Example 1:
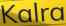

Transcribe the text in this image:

Kalra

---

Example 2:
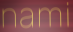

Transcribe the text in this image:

nami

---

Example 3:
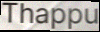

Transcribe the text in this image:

Thappu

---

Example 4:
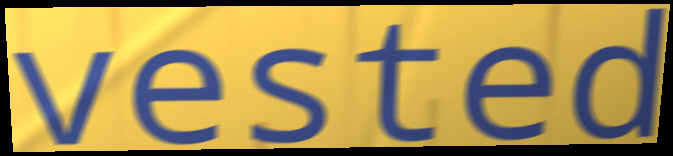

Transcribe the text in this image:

vested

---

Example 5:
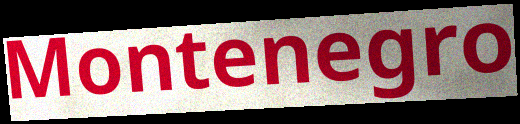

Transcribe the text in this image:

Montenegro